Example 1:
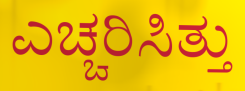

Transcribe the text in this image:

ಎಚ್ಚರಿಸಿತ್ತು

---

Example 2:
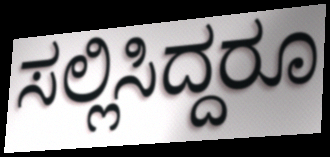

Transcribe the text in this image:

ಸಲ್ಲಿಸಿದ್ದರೂ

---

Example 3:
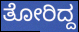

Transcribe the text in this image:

ತೋರಿದ್ದ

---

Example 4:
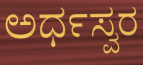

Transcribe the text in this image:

ಅರ್ಧಸ್ವರ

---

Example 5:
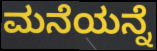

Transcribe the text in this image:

ಮನೆಯನ್ನೆ